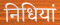
निधियां